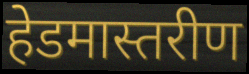
हेडमास्तरीण